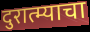
दुरात्म्याचा